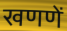
खणणें